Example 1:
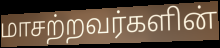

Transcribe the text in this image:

மாசற்றவர்களின்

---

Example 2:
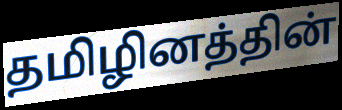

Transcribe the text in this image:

தமிழினத்தின்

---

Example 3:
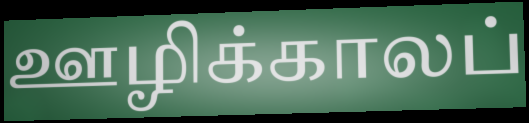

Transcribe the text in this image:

ஊழிக்காலப்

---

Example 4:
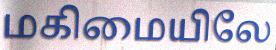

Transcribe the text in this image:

மகிமையிலே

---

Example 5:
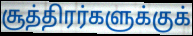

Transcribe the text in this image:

சூத்திரர்களுக்குக்